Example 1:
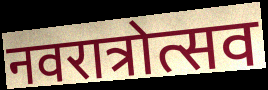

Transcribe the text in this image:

नवरात्रोत्सव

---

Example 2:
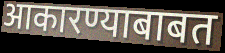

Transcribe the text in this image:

आकारण्याबाबत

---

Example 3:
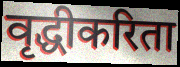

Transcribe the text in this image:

वृद्धीकरिता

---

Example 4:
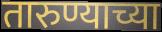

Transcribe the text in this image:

तारुण्याच्या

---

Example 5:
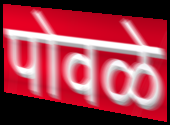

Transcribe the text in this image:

पोवळे